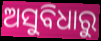
ଅସୁବିଧାରୁ